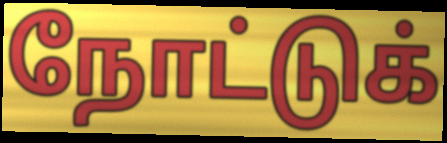
நோட்டுக்